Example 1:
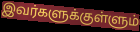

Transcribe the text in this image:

இவர்களுக்குள்ளும்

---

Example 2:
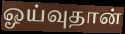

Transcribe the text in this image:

ஓய்வுதான்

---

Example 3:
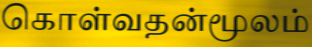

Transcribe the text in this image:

கொள்வதன்மூலம்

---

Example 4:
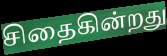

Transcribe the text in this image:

சிதைகின்றது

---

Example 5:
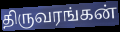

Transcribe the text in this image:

திருவரங்கன்